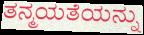
ತನ್ಮಯತೆಯನ್ನು